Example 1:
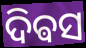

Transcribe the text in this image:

ଦିଵସ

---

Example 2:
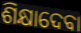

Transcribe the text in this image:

ଶିକ୍ଷାଦେବା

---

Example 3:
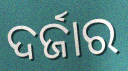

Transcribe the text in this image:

ଦର୍ଜାର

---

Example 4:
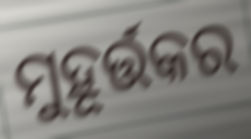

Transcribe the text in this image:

ମୁହୂର୍ତ୍ତକର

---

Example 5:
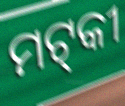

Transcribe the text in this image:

ମଟ୍‌କୀ